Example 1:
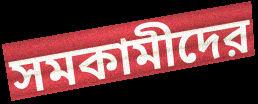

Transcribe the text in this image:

সমকামীদের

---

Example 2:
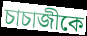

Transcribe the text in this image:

চাচাজীকে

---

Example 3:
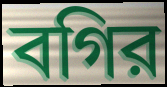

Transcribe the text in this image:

বগির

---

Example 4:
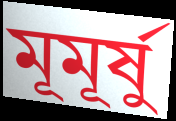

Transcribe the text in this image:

মূমূর্ষু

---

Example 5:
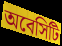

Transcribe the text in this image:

অবেসিটি